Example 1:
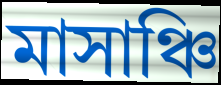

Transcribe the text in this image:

মাসাঞ্চি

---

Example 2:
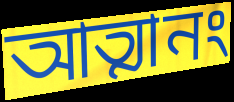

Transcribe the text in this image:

আত্মানং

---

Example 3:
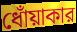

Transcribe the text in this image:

ধোঁয়াকার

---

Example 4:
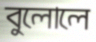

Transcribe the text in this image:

বুলোলে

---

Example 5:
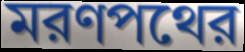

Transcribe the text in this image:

মরণপথের